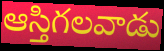
ఆస్తిగలవాడు